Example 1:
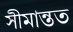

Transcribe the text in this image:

সীমান্তত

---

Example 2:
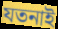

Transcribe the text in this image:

যতনাই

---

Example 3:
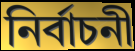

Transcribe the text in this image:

নিৰ্বাচনী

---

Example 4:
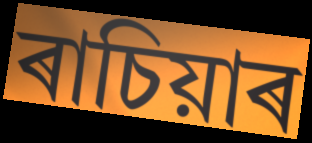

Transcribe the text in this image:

ৰাচিয়াৰ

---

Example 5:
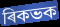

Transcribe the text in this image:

ৰিকভক